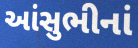
આંસુભીનાં